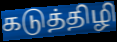
கடுத்திழி